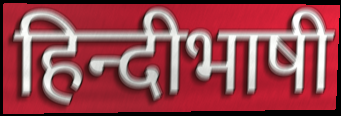
हिन्दीभाषी